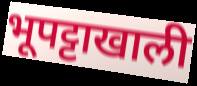
भूपट्टाखाली